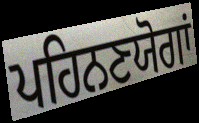
ਪਹਿਨਣਯੋਗਾਂ